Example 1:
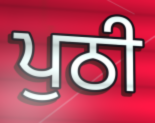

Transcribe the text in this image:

ਪੁਠੀ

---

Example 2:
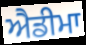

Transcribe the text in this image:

ਐਡੀਮਾ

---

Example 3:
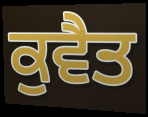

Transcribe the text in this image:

ਕੁਵੈਤ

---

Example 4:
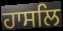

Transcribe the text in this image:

ਹਾਸਲਿ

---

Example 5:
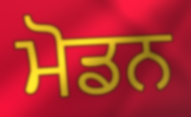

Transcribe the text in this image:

ਮੋਡਨ